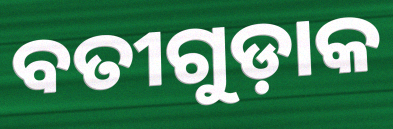
ବତୀଗୁଡ଼ାକ